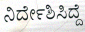
ನಿರ್ದೇಶಿಸಿದ್ದೆ